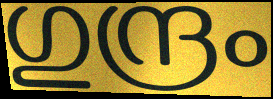
ഗുന്ദ്രം